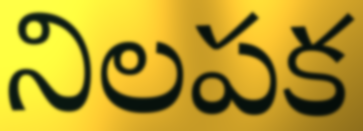
నిలపక